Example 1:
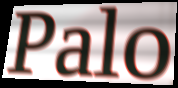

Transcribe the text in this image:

Palo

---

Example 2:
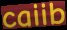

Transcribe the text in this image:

caiib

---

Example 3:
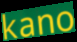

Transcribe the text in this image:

kano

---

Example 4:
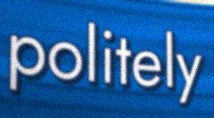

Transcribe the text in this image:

politely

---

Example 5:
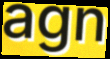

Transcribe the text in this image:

agn